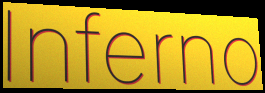
Inferno